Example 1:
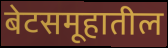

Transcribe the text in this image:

बेटसमूहातील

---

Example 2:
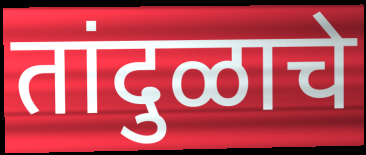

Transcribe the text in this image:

तांदुळाचे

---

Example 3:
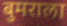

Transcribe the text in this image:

बुमराला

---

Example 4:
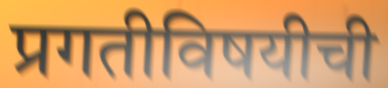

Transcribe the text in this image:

प्रगतीविषयीची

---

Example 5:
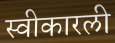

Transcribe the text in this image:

स्वीकारली